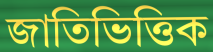
জাতিভিত্তিক